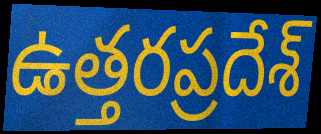
ఉత్తరప్రదేశ్